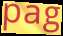
pag